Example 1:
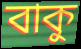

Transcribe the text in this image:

বাকু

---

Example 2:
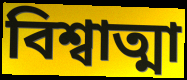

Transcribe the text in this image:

বিশ্বাত্মা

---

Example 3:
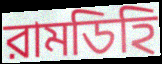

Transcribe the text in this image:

রামডিহি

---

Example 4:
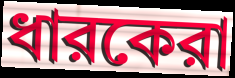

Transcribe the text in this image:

ধারকেরা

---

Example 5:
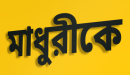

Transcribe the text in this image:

মাধুরীকে